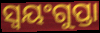
ସ୍ୱୟଂଗୁପ୍ତା